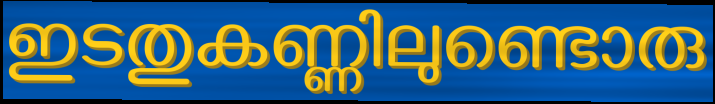
ഇടതുകണ്ണിലുണ്ടൊരു